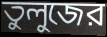
তুলুজের